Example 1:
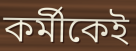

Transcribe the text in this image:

কর্মীকেই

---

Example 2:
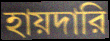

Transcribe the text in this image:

হায়দারি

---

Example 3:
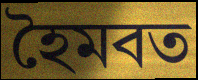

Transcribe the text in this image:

হৈমবত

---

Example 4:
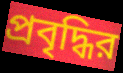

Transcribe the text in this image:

প্রবৃদ্ধির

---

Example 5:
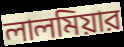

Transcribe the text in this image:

লালমিয়ার